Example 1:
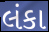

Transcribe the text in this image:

લંકા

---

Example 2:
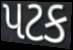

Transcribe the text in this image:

પટક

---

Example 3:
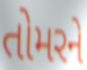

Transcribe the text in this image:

તોમરને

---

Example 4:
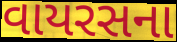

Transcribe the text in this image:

વાયરસના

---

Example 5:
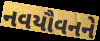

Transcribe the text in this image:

નવયૌવનને